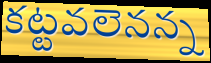
కట్టవలెనన్న